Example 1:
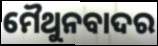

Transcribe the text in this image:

ମୈଥୁନବାଦର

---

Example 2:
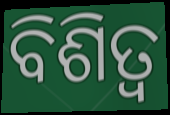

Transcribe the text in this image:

ବିଶିତ୍ଵ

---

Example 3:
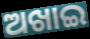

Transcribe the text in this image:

ଅଖାଇ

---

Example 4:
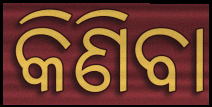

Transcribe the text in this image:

କିଣିବା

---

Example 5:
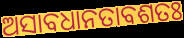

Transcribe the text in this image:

ଅସାବଧାନତାବଶତଃ